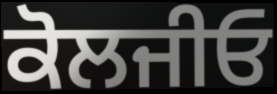
ਕੋਲਜੀਓ